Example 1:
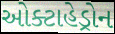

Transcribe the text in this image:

ઓક્ટાહેડ્રોન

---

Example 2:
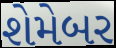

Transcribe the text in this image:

શેમેબર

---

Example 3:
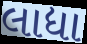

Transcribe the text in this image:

લાદ્યા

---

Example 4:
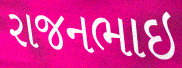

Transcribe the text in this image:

રાજનભાઇ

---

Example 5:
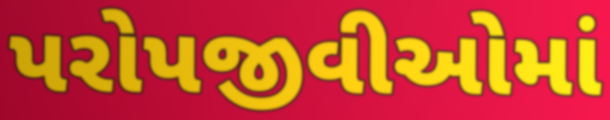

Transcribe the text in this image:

પરોપજીવીઓમાં